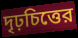
দৃঢ়চিত্তের